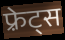
फ़्रेट्स